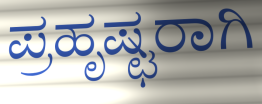
ಪ್ರಹೃಷ್ಟರಾಗಿ